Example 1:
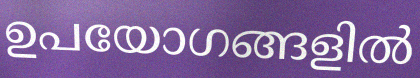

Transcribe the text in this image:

ഉപയോഗങ്ങളിൽ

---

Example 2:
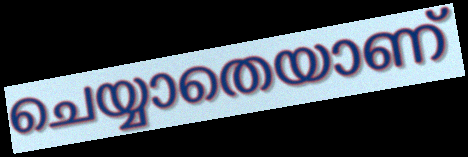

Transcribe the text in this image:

ചെയ്യാതെയാണ്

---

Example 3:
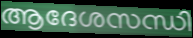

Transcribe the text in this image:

ആദേശസന്ധി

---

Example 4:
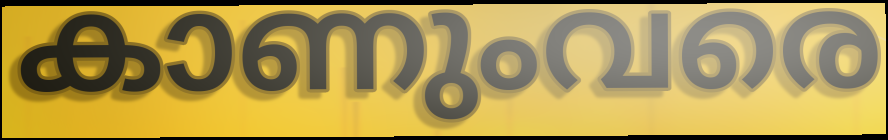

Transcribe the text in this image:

കാണുംവരെ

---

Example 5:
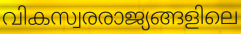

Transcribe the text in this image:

വികസ്വരരാജ്യങ്ങളിലെ